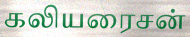
கலியரைசன்